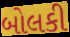
બોલકી